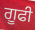
ਗੂਫੀ